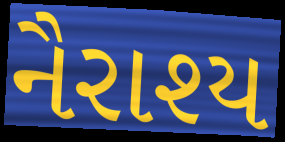
નૈરાશ્ય